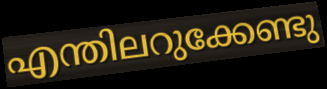
എന്തിലറുക്കേണ്ടു